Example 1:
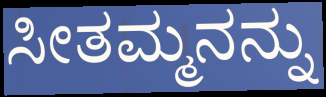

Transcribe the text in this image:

ಸೀತಮ್ಮನನ್ನು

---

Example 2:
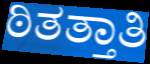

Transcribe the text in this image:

ಠಿತತ್ತಾತಿ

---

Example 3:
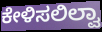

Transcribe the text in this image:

ಕೇಳಿಸಲಿಲ್ವಾ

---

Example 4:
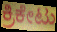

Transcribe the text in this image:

ಕ್ರಿಕೇಟು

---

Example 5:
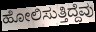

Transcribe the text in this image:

ಹೋಲಿಸುತ್ತಿದ್ದೆವು